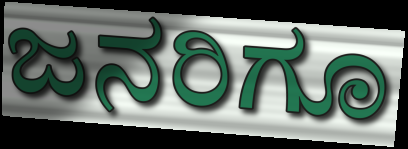
ಜನರಿಗೂ